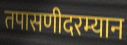
तपासणीदरम्यान